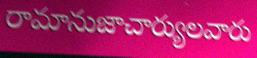
రామానుజాచార్యులవారు